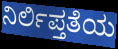
ನಿರ್ಲಿಪ್ತತೆಯ